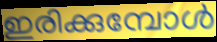
ഇരിക്കുമ്പോൾ